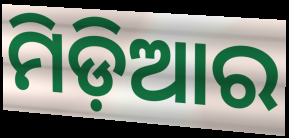
ମିଡ଼ିଆର